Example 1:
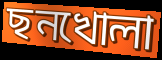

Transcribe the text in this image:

ছনখোলা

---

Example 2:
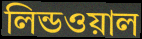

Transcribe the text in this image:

লিন্ডওয়াল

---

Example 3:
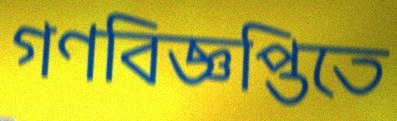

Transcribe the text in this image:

গণবিজ্ঞপ্তিতে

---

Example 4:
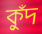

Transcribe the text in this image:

কুঁদ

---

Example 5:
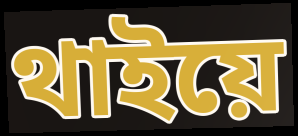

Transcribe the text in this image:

থাইয়ে